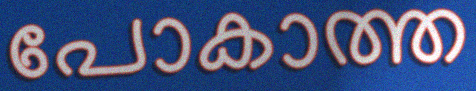
പോകാത്ത